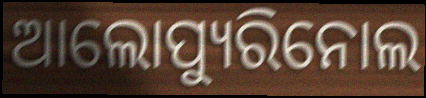
ଆଲୋପ୍ୟୁରିନୋଲ